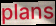
plans